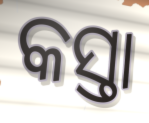
କସ୍ତା